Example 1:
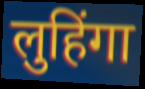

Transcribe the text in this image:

लुहिंगा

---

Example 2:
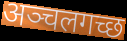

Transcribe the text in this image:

अञ्चलगच्छ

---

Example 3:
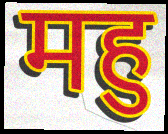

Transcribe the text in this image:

महु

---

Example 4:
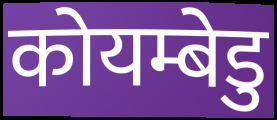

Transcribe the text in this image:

कोयम्बेडु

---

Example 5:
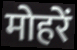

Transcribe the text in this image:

मोहरें